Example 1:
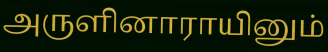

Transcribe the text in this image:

அருளினாராயினும்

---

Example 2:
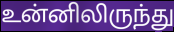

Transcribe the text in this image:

உன்னிலிருந்து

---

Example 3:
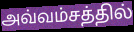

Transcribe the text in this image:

அவ்வம்சத்தில்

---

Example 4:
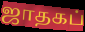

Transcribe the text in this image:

ஜாதகப்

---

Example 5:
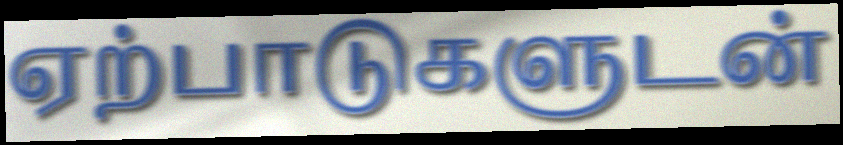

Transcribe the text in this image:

ஏற்பாடுகளுடன்